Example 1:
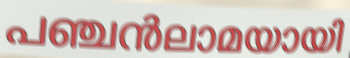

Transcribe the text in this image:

പഞ്ചൻലാമയായി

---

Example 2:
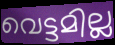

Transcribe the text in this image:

വെട്ടമില്ല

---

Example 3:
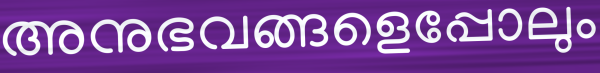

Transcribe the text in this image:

അനുഭവങ്ങളെപ്പോലും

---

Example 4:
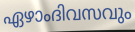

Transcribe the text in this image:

ഏഴാംദിവസവും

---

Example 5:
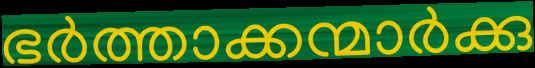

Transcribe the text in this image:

ഭർത്താക്കന്മാർക്കു